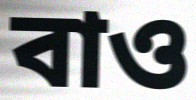
বাও